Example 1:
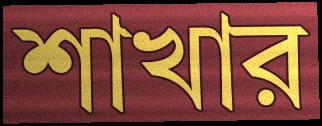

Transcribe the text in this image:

শাখার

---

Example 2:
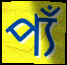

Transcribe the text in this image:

প্যঁ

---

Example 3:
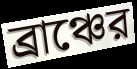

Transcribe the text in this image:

ব্রাঞ্চের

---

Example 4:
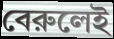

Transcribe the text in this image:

বেরুলেই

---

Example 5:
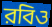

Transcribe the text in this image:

রবিও